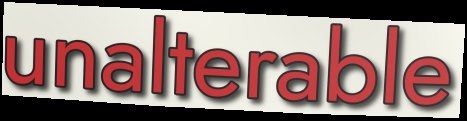
unalterable